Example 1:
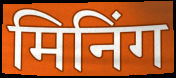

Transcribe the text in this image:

मिनिंग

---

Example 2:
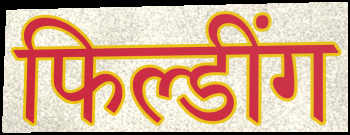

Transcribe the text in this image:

फिल्डींग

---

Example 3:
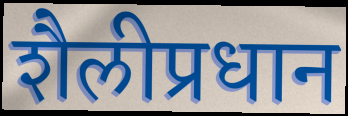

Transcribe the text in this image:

शैलीप्रधान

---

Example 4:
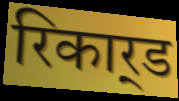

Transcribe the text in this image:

रिकार्ड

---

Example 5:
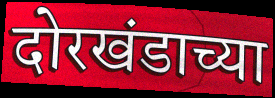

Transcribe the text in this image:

दोरखंडाच्या